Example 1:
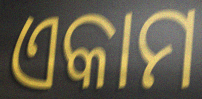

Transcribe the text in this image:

ଏକାମ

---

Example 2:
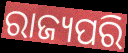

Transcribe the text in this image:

ରାଜ୍ୟପରି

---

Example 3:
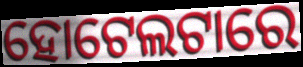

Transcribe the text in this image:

ହୋଟେଲଟାରେ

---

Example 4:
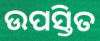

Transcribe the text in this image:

ଉପସ୍ତିତ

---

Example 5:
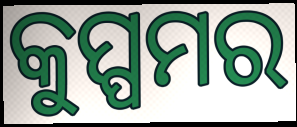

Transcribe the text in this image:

କୁପ୍ପମର